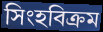
সিংহবিক্রম